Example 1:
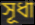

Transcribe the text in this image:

সূধা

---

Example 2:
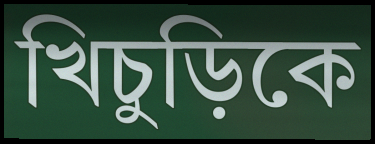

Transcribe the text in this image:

খিচুড়িকে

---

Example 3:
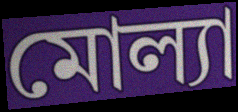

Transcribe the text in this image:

মোল্যা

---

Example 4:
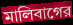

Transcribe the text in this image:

মালিবাগের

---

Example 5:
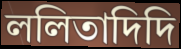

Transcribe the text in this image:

ললিতাদিদি